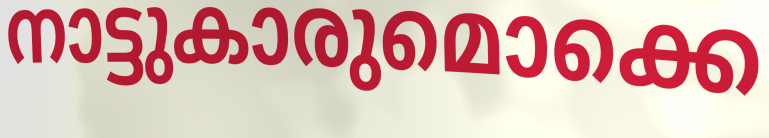
നാട്ടുകാരുമൊക്കെ